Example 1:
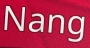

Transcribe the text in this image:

Nang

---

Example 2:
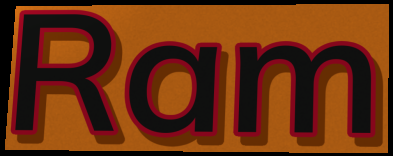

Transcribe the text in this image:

Ram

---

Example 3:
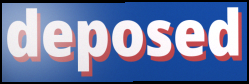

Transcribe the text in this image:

deposed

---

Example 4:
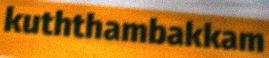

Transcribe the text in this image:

kuththambakkam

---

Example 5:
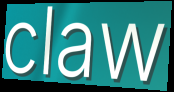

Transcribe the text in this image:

claw